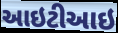
આઇટીઆઇ